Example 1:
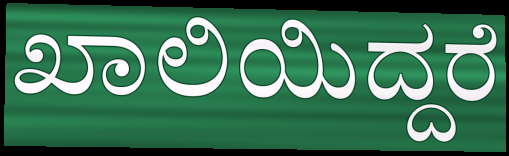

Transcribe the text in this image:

ಖಾಲಿಯಿದ್ದರೆ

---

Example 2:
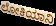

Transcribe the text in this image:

ಲೋಕಿಯಾನಿ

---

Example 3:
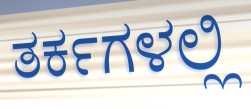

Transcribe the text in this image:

ತರ್ಕಗಳಲ್ಲಿ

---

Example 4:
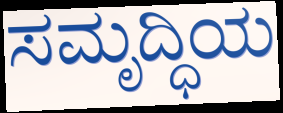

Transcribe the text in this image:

ಸಮೃದ್ಧಿಯ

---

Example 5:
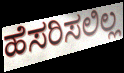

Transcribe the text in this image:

ಹೆಸರಿಸಲಿಲ್ಲ